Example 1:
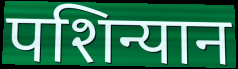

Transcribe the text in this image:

पशिन्यान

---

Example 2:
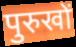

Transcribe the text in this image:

पुरुखों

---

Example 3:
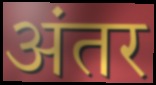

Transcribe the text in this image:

अंतर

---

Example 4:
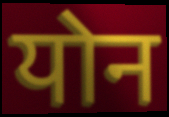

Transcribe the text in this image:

योन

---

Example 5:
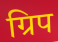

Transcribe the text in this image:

ग्रिप